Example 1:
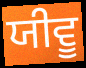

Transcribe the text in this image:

ਯੀਵੂ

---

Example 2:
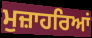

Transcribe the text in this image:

ਮੁਜ਼ਾਹਰਿਆਂ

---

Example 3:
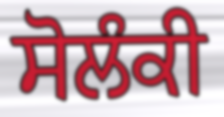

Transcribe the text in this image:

ਸੋਲੰਕੀ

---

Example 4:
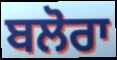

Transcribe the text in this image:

ਬਲੋਰਾ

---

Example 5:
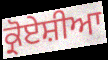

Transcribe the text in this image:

ਕ੍ਰੋਏਸ਼ੀਆ